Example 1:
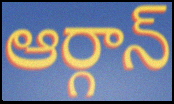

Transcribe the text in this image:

ఆర్గాన్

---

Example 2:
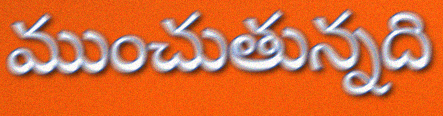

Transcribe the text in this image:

ముంచుతున్నది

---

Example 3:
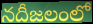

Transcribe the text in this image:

నదీజలంలో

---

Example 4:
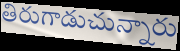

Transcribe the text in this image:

తిరుగాడుచున్నారు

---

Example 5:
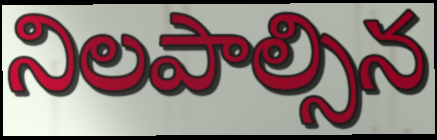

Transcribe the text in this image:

నిలపాల్సిన